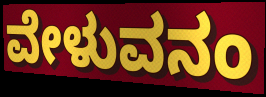
ವೇಳುವನಂ